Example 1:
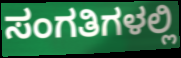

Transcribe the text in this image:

ಸಂಗತಿಗಳಲ್ಲಿ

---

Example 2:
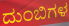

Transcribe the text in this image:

ದುಂಬಿಗಳ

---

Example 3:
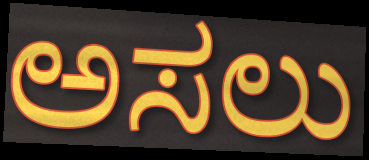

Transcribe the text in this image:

ಅಸಲು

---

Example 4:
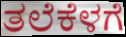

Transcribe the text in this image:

ತಲೆಕೆಳಗೆ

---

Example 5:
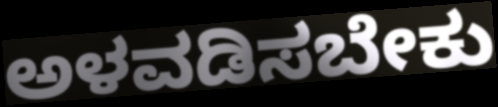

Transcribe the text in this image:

ಅಳವಡಿಸಬೇಕು